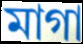
মাগা